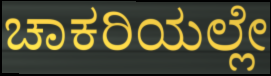
ಚಾಕರಿಯಲ್ಲೇ